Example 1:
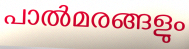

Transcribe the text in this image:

പാൽമരങ്ങളും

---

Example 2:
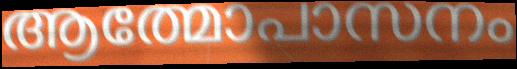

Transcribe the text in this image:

ആത്മോപാസനം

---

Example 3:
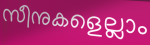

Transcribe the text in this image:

സീനുകളെല്ലാം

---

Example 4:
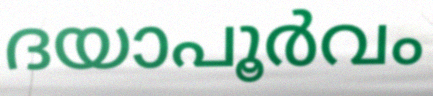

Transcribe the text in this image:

ദയാപൂർവം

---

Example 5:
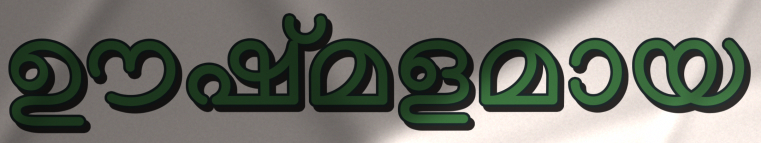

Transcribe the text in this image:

ഊഷ്‌മളമായ